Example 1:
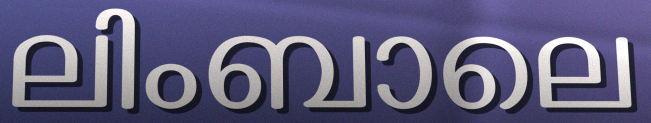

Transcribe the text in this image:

ലിംബാലെ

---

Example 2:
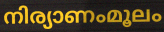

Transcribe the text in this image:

നിര്യാണംമൂലം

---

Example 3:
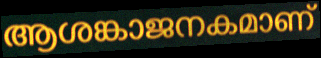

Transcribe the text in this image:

ആശങ്കാജനകമാണ്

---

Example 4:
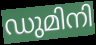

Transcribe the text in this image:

ഡുമിനി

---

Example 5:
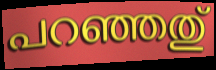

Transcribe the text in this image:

പറഞ്ഞതു്